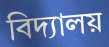
বিদ্যালয়